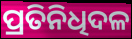
ପ୍ରତିନିଧିଦଳ